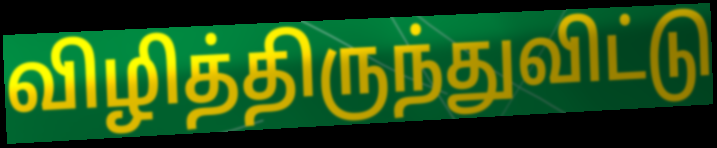
விழித்திருந்துவிட்டு